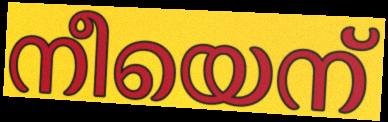
നീയെന്